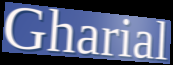
Gharial